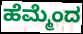
ಹೆಮ್ಮೆಂದ